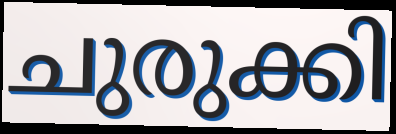
ചുരുക്കി